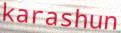
karashun